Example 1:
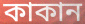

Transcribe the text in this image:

কাকান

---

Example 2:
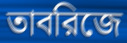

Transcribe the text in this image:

তাবরিজে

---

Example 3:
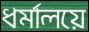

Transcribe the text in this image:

ধর্মালয়ে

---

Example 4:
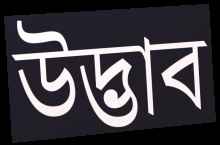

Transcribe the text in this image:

উদ্ভাব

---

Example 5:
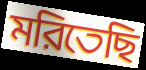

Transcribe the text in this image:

মরিতেছি